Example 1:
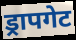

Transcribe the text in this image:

ड्रापगेट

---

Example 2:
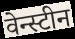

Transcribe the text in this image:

वेन्स्टीन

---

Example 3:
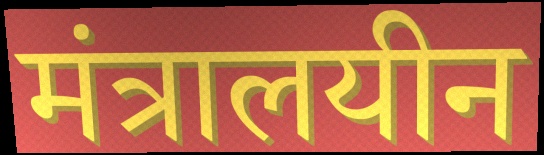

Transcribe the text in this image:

मंत्रालयीन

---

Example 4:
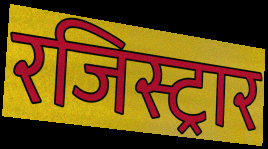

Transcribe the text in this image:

रजिस्ट्रार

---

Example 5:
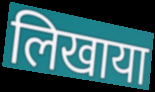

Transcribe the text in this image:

लिखाया